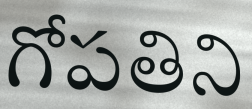
గోపతిని